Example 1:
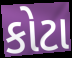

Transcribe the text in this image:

કોટા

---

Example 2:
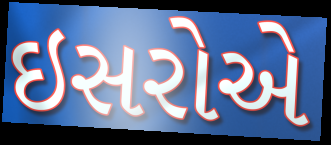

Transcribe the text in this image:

ઇસરોએ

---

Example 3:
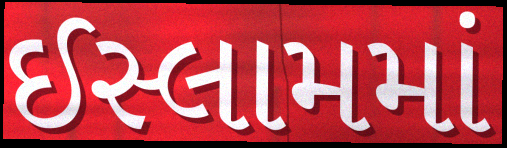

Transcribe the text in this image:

ઈસ્લામમાં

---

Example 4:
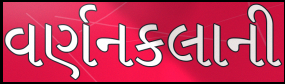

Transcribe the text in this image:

વર્ણનકલાની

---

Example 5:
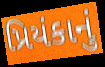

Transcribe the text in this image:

પ્રિયંકાનું